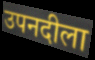
उपनदीला